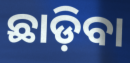
ଛାଡ଼ିବା